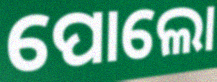
ପୋଲୋ